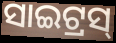
ସାଇଟ୍ରସ୍